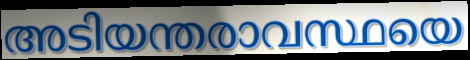
അടിയന്തരാവസ്ഥയെ